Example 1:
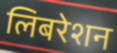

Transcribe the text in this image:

लिबरेशन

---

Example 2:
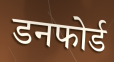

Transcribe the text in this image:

डनफोर्ड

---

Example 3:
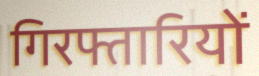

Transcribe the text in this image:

गिरफ्तारियों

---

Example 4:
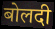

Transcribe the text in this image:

बोलदी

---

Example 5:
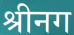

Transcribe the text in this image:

श्रीनग